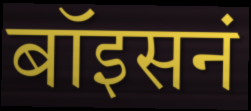
बॉइसनं